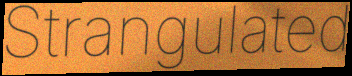
Strangulated